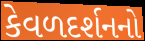
કેવળદર્શનનો